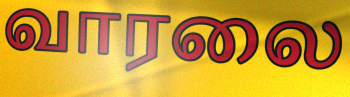
வாரலை